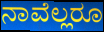
ನಾವೆಲ್ಲರೂ